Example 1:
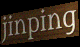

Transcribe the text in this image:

jinping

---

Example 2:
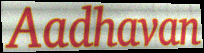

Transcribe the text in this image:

Aadhavan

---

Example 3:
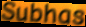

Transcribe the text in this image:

Subhas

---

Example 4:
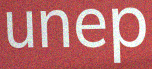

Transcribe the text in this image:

unep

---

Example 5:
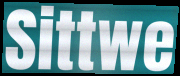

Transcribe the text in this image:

Sittwe